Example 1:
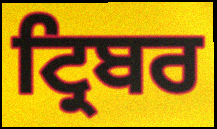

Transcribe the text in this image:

ਟ੍ਰਿਬਰ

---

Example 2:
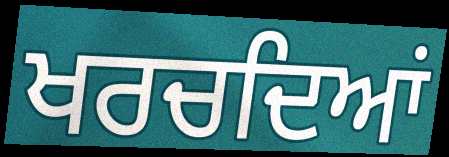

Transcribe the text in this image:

ਖਰਚਦਿਆਂ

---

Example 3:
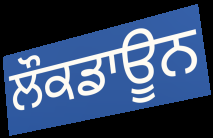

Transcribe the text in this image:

ਲੌਕਡਾਊਨ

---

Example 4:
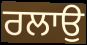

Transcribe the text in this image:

ਰਲਾਉ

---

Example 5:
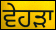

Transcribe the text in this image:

ਵੇਹੜਾ